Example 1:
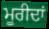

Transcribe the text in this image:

ਮੂਰੀਦਾਂ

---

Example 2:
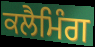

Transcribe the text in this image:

ਕਲੈਮਿੰਗ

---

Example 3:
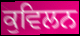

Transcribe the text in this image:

ਕੁਵਿਲਨ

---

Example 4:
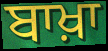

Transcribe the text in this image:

ਬਾਖ਼ਾ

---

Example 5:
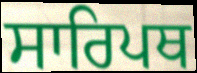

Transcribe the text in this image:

ਸਾਰਿਪਥ